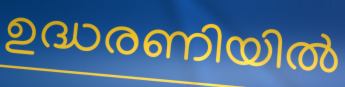
ഉദ്ധരണിയിൽ